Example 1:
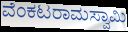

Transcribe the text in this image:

ವೆಂಕಟರಾಮಸ್ವಾಮಿ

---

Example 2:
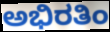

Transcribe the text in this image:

ಅಭಿರತಿಂ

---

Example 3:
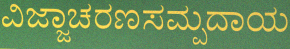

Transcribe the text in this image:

ವಿಜ್ಜಾಚರಣಸಮ್ಪದಾಯ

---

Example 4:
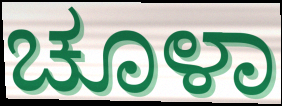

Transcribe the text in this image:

ಚೂಳಾ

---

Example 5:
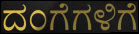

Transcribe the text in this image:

ದಂಗೆಗಳಿಗೆ